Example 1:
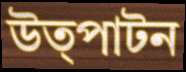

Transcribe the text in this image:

উত্পাটন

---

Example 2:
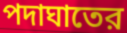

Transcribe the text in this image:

পদাঘাতের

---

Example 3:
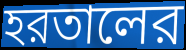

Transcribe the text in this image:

হরতালের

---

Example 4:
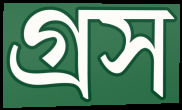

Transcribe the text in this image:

গ্রস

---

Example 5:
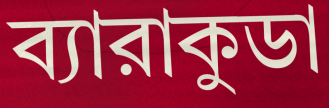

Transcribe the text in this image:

ব্যারাকুডা